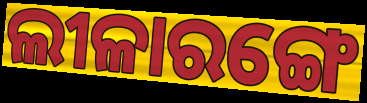
ଲୀଳାରଙ୍ଗେ